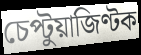
চেপ্টুয়াজিণ্টক